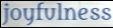
joyfulness